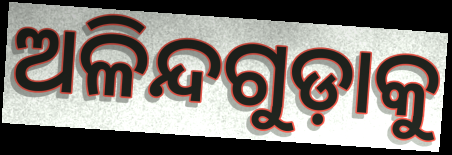
ଅଳିନ୍ଦଗୁଡ଼ାକୁ